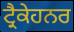
ਟ੍ਰੈਕੇਹਨਰ